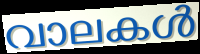
വാലകൾ